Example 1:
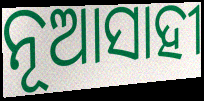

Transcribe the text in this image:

ନୂଆସାହୀ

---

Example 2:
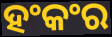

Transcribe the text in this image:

ହଂକଂର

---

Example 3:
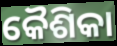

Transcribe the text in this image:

କୈଶିକା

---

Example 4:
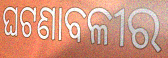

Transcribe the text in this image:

ଘଟଣାବଳୀର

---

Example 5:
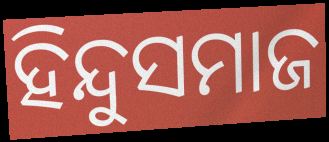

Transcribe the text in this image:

ହିନ୍ଦୁସମାଜ